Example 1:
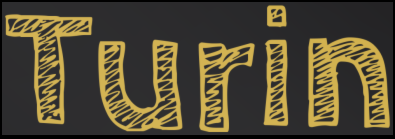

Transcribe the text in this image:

Turin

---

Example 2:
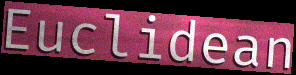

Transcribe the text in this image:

Euclidean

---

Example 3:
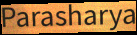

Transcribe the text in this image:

Parasharya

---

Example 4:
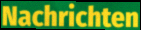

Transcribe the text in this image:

Nachrichten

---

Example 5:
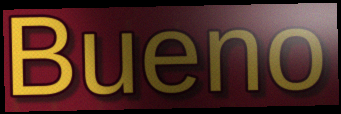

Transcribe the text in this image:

Bueno